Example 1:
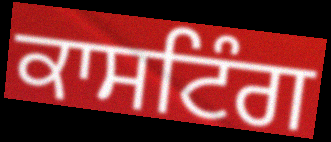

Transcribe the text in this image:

ਕਾਸਟਿੰਗ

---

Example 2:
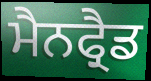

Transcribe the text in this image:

ਮੈਨਫ੍ਰੈਡ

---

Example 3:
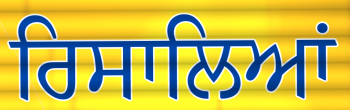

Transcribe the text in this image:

ਰਿਸਾਲਿਆਂ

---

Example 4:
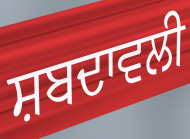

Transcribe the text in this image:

ਸ਼ਬਦਾਵਲੀ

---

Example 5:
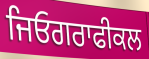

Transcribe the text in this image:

ਜਿਓਗਰਾਫੀਕਲ